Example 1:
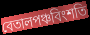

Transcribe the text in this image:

বেতালপঞ্চবিংশতি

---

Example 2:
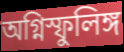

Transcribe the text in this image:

অগ্নিস্ফুলিঙ্গ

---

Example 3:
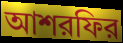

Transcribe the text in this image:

আশরফির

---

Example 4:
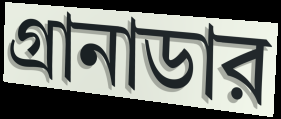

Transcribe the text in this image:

গ্রানাডার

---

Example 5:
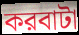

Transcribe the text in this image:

করবাটা